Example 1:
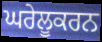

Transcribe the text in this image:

ਘਰੇਲੂਕਰਨ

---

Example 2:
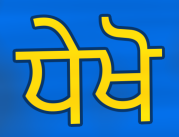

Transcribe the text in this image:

ਧੇਖੋ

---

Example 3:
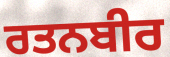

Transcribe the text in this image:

ਰਤਨਬੀਰ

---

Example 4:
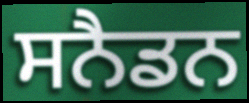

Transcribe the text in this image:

ਸਨੈਡਨ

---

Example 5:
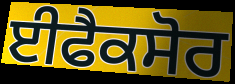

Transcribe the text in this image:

ਈਫੈਕਸੋਰ